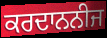
ਕਰਦਾਨਨੀਜ